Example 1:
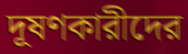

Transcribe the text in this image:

দূষণকারীদের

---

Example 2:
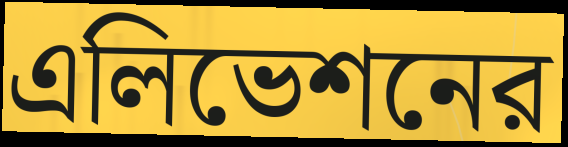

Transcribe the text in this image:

এলিভেশনের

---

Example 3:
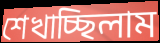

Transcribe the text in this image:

শেখাচ্ছিলাম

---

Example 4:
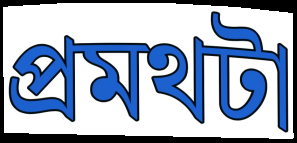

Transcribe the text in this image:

প্রমথটা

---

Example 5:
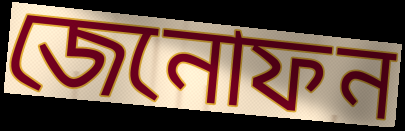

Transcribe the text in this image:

জেনোফন